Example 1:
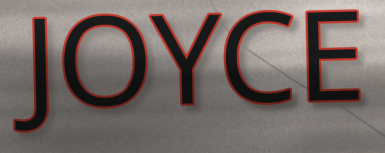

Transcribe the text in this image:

JOYCE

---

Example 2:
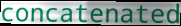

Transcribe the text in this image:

concatenated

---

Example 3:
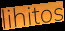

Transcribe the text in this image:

lihitos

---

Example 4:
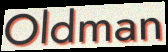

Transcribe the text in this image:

Oldman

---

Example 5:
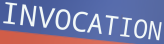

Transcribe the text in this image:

INVOCATION